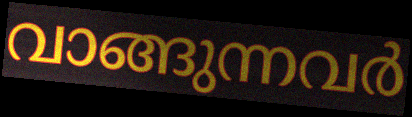
വാങ്ങുന്നവർ